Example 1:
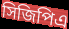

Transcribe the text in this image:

সিজিপিএ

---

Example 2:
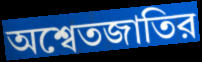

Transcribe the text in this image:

অশ্বেতজাতির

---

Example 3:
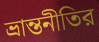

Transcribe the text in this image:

ভ্রান্তনীতির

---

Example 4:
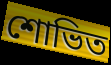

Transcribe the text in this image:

শোভিত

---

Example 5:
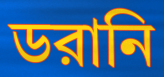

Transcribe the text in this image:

ডরানি